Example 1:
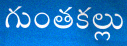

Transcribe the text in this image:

గుంతకల్లు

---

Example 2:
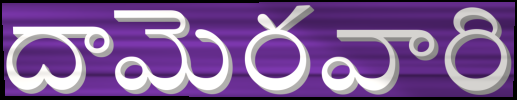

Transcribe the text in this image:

దామెరవారి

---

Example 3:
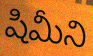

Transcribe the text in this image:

షిమీని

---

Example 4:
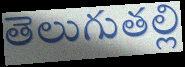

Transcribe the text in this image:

తెలుగుతల్లి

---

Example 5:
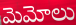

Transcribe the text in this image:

మెమోలు